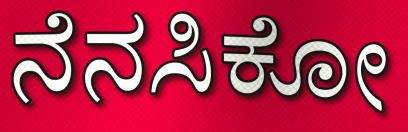
ನೆನಸಿಕೋ